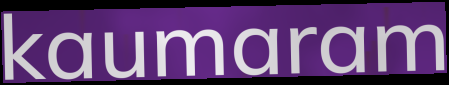
kaumaram